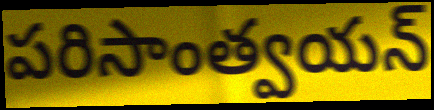
పరిసాంత్వయన్